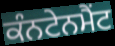
ਕੰਨਟੇਨਮੈਂਟ